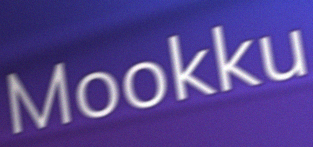
Mookku